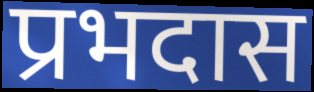
प्रभदास